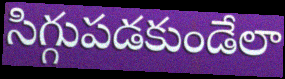
సిగ్గుపడకుండేలా